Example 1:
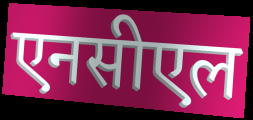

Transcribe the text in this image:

एनसीएल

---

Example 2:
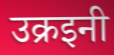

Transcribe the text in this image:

उक्रइनी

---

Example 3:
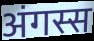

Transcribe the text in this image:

अंगस्स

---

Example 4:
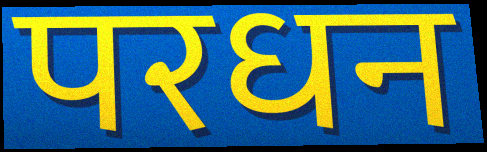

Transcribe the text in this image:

परधन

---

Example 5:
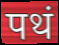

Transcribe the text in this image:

पथं